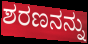
ಶರಣನನ್ನು